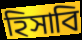
হিসাবি